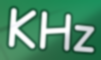
KHz